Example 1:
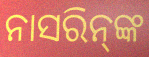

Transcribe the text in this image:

ନାସରିନ୍‌ଙ୍କ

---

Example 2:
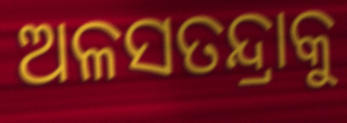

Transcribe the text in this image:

ଅଳସତନ୍ଦ୍ରାକୁ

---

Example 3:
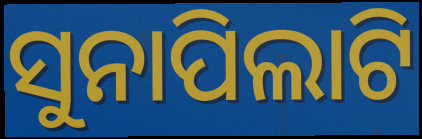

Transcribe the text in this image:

ସୁନାପିଲାଟି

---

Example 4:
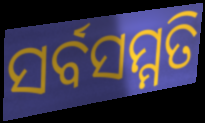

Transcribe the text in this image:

ସର୍ବସମ୍ମତି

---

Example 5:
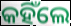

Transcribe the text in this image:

କହିଁଲେ